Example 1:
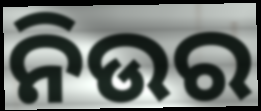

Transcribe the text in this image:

ନିଉର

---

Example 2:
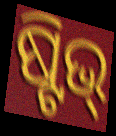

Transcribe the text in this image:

ଷ୍ଟିଭ୍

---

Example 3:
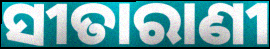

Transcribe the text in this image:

ସୀତାରାଣୀ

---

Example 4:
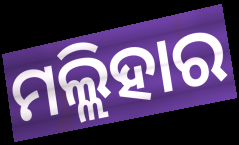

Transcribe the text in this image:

ମଲ୍ଲିହାର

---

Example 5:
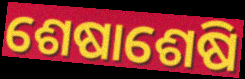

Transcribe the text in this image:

ଶେଷାଶେଷି